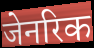
जेनरिक